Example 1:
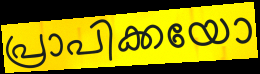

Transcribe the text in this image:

പ്രാപിക്കയോ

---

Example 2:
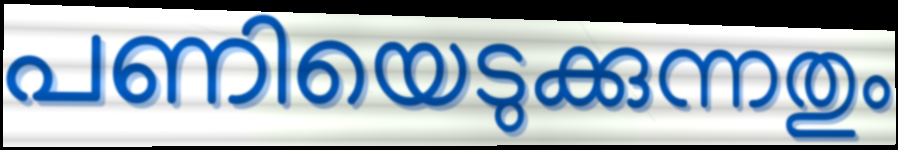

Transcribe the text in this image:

പണിയെടുക്കുന്നതും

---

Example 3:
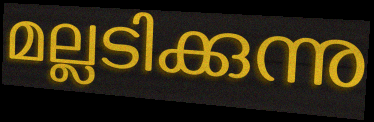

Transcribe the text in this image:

മല്ലടിക്കുന്നു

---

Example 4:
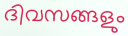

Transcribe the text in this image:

ദിവസങ്ങളും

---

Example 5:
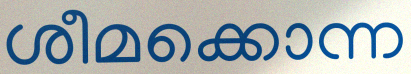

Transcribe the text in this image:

ശീമക്കൊന്ന